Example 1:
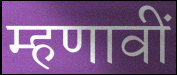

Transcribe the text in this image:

म्हणावीं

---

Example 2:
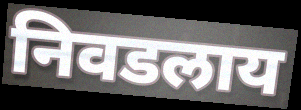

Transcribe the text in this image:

निवडलाय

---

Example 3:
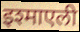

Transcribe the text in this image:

इश्माएली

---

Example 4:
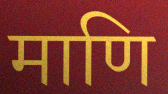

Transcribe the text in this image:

माणि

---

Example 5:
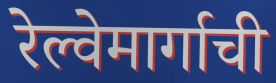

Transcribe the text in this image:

रेल्वेमार्गाची